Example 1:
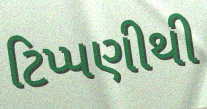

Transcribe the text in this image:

ટિપ્પણીથી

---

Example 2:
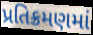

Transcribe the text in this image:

પ્રતિક્રમણમાં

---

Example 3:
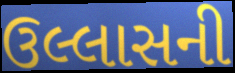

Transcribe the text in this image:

ઉલ્લાસની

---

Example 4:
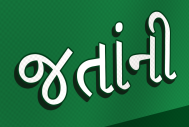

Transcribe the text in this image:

જતાંની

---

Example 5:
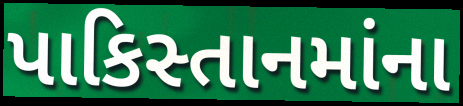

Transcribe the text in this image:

પાકિસ્તાનમાંના